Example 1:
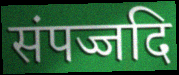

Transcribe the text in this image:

संपज्जदि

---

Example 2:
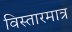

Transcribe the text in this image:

विस्तारमात्र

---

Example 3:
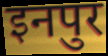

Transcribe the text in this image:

इनपुर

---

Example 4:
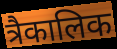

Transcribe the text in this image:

त्रैकालिक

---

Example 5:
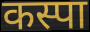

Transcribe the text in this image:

कस्पा